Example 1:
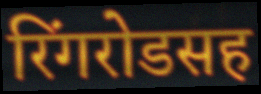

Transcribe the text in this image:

रिंगरोडसह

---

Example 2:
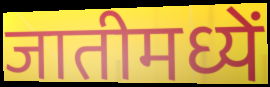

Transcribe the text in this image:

जातीमध्यें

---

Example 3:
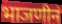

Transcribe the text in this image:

भाजणीनं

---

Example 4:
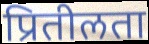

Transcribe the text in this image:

प्रितीलता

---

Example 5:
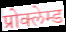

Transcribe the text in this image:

प्रोक्लेम्ड